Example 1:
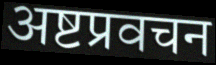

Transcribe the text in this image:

अष्टप्रवचन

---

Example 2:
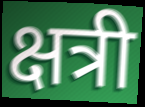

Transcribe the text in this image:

क्षत्री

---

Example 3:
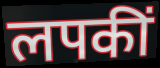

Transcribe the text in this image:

लपकीं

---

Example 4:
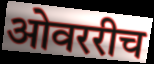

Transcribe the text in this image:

ओवररीच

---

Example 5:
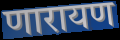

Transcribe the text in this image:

णारायण